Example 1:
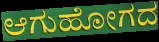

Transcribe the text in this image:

ಆಗುಹೋಗದ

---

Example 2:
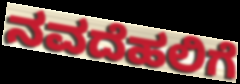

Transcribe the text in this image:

ನವದೆಹಲಿಗೆ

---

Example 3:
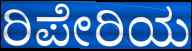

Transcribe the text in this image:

ರಿಪೇರಿಯ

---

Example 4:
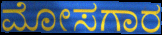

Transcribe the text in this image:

ಮೋಸಗಾರ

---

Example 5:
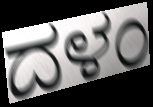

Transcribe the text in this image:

ದಳಂ